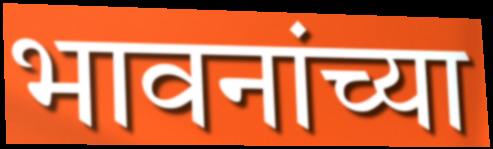
भावनांच्या